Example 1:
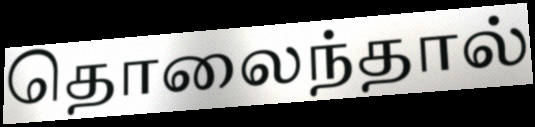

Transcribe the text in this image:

தொலைந்தால்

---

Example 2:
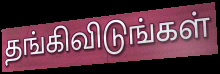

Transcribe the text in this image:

தங்கிவிடுங்கள்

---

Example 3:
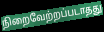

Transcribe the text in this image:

நிறைவேற்றப்படாதது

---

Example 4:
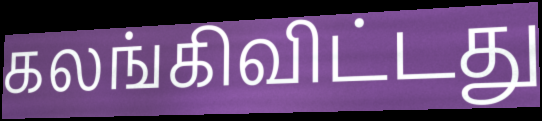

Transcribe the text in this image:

கலங்கிவிட்டது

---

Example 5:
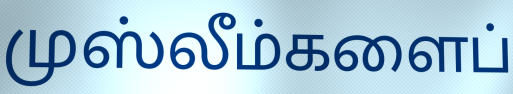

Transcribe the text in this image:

முஸ்லீம்களைப்